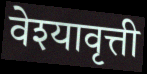
वेश्यावृत्ती